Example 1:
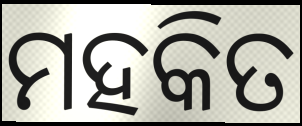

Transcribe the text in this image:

ମହକିତ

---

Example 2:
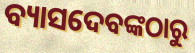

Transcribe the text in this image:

ବ୍ୟାସଦେବଙ୍କଠାରୁ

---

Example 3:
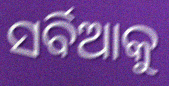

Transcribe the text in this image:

ସର୍ବିଆକୁ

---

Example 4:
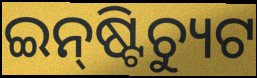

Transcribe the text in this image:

ଇନ୍‌ଷ୍ଟିଚ୍ୟୁଟ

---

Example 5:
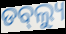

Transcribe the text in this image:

ଡବ୍‌ଲ୍ୟୁ